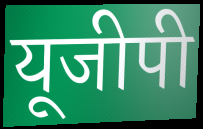
यूजीपी